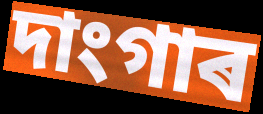
দাংগাৰ